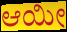
ಆಯೀ